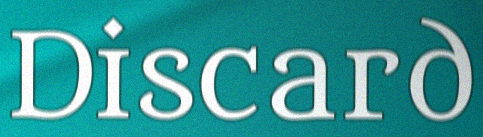
Discard